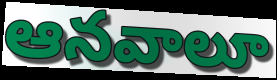
ఆనవాలూ